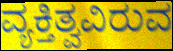
ವ್ಯಕ್ತಿತ್ವವಿರುವ